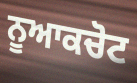
ਨੂਆਕਚੋਟ